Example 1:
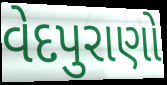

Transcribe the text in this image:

વેદપુરાણો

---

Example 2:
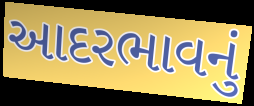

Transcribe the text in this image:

આદરભાવનું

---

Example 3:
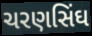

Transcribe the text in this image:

ચરણસિંઘ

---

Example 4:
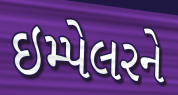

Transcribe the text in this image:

ઇમ્પેલરને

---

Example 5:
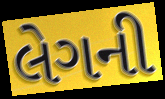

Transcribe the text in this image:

લેગની